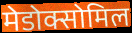
मेडोक्सोमिल